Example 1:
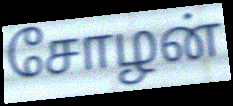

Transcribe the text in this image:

சோழன்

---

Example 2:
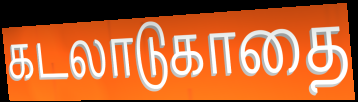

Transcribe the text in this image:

கடலாடுகாதை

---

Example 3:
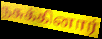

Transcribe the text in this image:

நசுக்கினார்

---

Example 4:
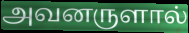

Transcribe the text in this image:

அவனருளால்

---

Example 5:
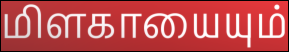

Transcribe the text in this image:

மிளகாயையும்